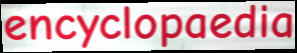
encyclopaedia